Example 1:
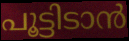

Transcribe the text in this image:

പൂട്ടിടാൻ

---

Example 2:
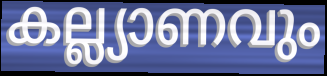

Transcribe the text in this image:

കല്ല്യാണവും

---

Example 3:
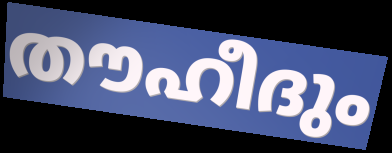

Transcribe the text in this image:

തൗഹീദും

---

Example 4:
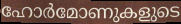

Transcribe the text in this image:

ഹോർമോണുകളുടെ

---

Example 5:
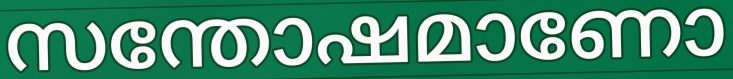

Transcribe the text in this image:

സന്തോഷമാണോ